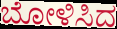
ಬೋಳಿಸಿದ